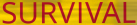
SURVIVAL